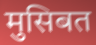
मुसिबत